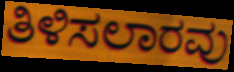
ತಿಳಿಸಲಾರವು